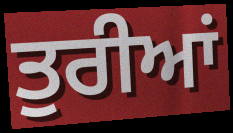
ਤੁਰੀਆਂ